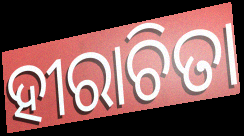
ହୀରାଚିତା